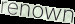
renown